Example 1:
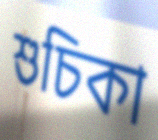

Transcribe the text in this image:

শুচিকা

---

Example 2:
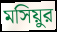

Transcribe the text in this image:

মসিয়ুর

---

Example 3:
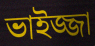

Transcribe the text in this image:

ভাইজ্জা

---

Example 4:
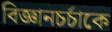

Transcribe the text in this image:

বিজ্ঞানচর্চাকে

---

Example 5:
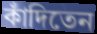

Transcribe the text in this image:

কাঁদিতেন